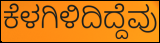
ಕೆಳಗಿಳಿದಿದ್ದೆವು